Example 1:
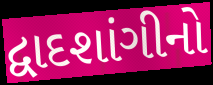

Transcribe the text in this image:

દ્વાદશાંગીનો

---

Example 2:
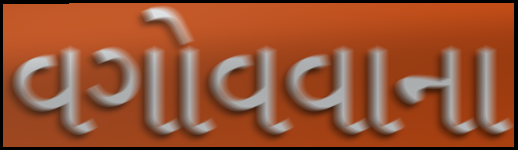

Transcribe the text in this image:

વગોવવાના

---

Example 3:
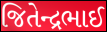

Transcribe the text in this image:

જિતેન્દ્રભાઈ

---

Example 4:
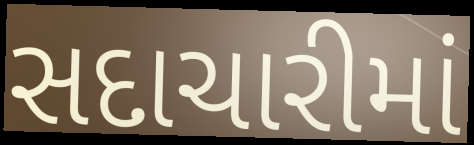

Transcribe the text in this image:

સદાચારીમાં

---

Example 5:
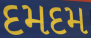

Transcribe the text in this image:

દમદમ